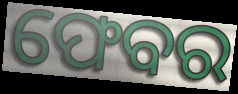
ଫେବର